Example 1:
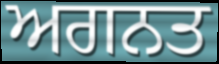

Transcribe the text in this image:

ਅਗਨਤ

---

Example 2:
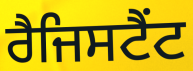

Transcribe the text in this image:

ਰੈਜਿਸਟੈਂਟ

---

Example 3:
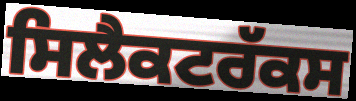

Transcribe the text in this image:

ਸਿਲੈਕਟਰੱਕਸ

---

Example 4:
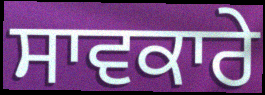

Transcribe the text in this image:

ਸਾਵਕਾਰੇ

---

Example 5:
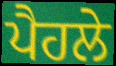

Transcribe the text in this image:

ਪੈਹਲੇ